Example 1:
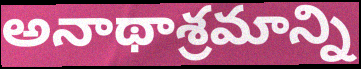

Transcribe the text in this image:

అనాథాశ్రమాన్ని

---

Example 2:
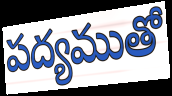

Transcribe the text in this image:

పద్యముతో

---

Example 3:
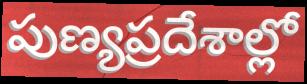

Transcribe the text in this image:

పుణ్యప్రదేశాల్లో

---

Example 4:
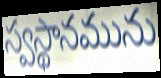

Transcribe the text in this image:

స్వస్థానమును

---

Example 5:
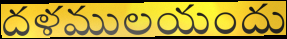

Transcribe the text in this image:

దళములయందు